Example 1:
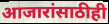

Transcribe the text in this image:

आजारांसाठीही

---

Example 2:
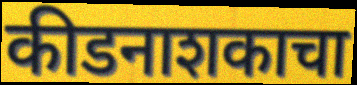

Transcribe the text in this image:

कीडनाशकाचा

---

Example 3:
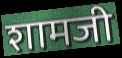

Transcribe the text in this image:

शामजी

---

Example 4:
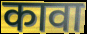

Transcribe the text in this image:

कावा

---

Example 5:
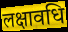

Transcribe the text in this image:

लक्षावधि